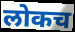
लोकच